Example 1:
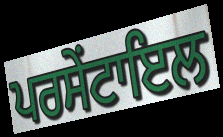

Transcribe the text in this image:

ਪਰਸੇਂਟਾਇਲ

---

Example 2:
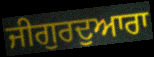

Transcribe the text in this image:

ਜੀਗੁਰਦੁਆਰਾ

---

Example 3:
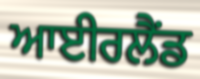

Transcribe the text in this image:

ਆਈਰਲੈਂਡ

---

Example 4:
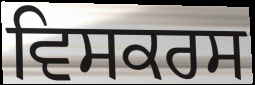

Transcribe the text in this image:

ਵਿਸਕਰਸ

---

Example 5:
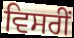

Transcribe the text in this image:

ਵਿਸਰੀਂ